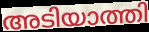
അടിയാത്തി